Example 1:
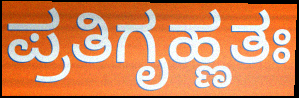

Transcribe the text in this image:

ಪ್ರತಿಗೃಹ್ಣತಃ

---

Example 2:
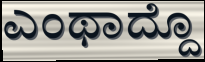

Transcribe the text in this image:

ಎಂಥಾದ್ದೊ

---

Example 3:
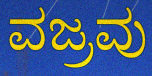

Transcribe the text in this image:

ವಜ್ರವು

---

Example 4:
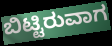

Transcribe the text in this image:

ಬಿಟ್ಟಿರುವಾಗ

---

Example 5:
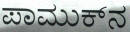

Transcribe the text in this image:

ಪಾಮುಕ್‍ನ